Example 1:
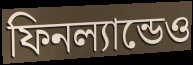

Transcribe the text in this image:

ফিনল্যান্ডেও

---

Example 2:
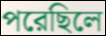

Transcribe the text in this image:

পরেছিলে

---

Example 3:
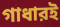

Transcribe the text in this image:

গাধারই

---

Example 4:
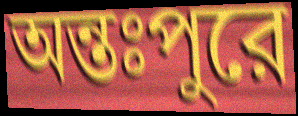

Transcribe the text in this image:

অন্তঃপুরে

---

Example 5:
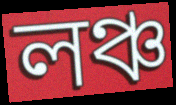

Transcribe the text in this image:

লঞ্চ